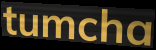
tumcha